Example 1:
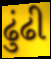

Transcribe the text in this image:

ઢુંઢી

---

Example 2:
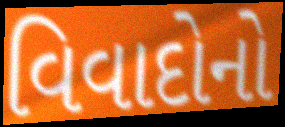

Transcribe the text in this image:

વિવાદોનો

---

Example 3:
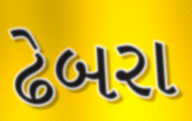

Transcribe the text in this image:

ઢેબરા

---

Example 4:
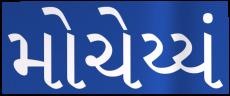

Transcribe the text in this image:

મોચેય્યં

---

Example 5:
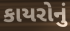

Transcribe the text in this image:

કાયરોનું